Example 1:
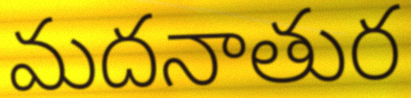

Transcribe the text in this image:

మదనాతుర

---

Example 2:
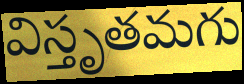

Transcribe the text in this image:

విస్తృతమగు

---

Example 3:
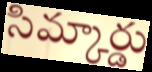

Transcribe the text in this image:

సిమ్కార్డు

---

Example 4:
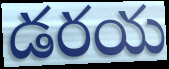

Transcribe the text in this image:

డరయ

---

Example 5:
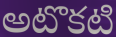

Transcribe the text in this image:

అటొకటి